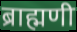
ब्राह्मणी